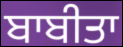
ਬਾਬੀਤਾ